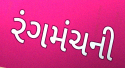
રંગમંચની